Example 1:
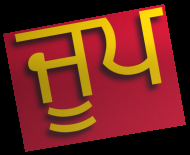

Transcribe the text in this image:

ਜੂਪ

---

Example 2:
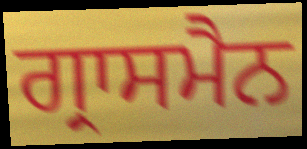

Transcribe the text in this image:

ਗ੍ਰਾਸਮੈਨ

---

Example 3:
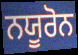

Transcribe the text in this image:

ਨਯੂਰੋਨ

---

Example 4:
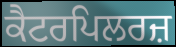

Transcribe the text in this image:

ਕੈਟਰਪਿਲਰਜ਼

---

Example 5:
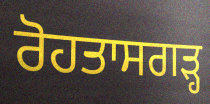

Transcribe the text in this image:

ਰੋਹਤਾਸਗੜ੍ਹ